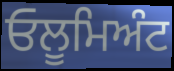
ਓਲੂਮਿਅੰਟ